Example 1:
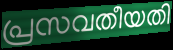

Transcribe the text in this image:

പ്രസവതീയതി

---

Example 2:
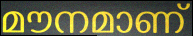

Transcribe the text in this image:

മൗനമാണ്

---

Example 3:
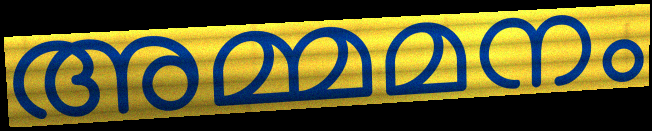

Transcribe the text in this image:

അമ്മമനം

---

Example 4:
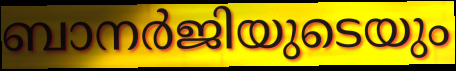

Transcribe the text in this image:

ബാനർജിയുടെയും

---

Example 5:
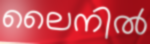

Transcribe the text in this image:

ലൈനിൽ